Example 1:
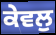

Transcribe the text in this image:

ਕੇਵਲੁ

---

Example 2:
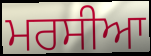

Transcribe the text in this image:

ਮਰਸੀਆ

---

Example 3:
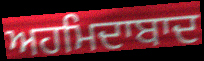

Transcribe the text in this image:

ਅਹਮਿਦਾਬਾਦ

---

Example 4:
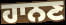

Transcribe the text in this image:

ਹਾਨਣ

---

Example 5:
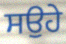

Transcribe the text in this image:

ਸਉਹੇ